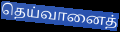
தெய்வானைத்